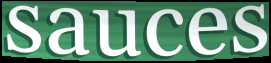
sauces